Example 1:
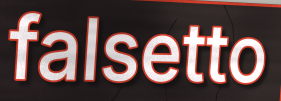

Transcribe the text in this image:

falsetto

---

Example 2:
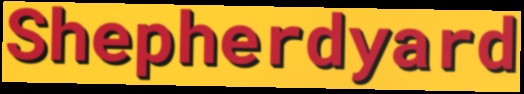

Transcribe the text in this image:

Shepherdyard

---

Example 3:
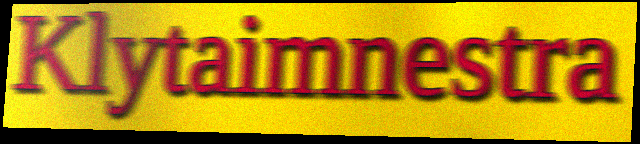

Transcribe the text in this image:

Klytaimnestra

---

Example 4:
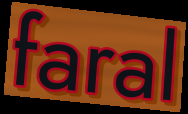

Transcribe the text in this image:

faral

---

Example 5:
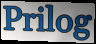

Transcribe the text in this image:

Prilog